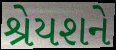
શ્રેયશને